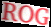
ROG